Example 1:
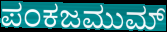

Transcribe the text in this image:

ಪಂಕಜಮುಮ್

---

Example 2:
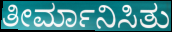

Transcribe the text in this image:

ತೀರ್ಮಾನಿಸಿತು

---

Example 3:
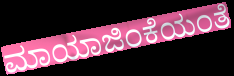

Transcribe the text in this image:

ಮಾಯಾಜಿಂಕೆಯಂತೆ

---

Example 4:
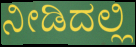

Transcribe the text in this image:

ನೀಡಿದಲ್ಲಿ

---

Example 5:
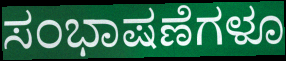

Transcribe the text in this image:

ಸಂಭಾಷಣೆಗಳೂ